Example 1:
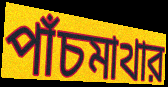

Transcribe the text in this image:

পাঁচমাথার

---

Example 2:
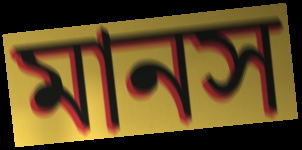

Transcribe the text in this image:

মানস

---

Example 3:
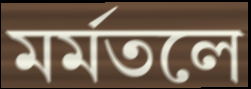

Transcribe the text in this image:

মর্মতলে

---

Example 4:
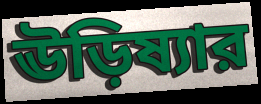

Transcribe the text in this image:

ঊড়িষ্যার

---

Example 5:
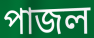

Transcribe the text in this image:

পাজল